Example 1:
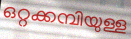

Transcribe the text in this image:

ഒറ്റക്കമ്പിയുള്ള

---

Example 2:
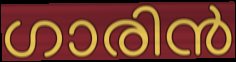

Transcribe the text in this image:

ഗാരിൻ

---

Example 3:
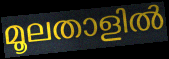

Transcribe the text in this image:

മൂലതാളിൽ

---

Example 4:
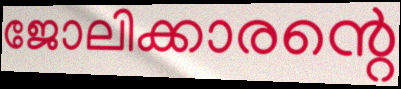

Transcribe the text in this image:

ജോലിക്കാരന്റെ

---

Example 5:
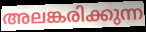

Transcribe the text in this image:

അലങ്കരിക്കുന്ന